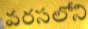
వరసలోని